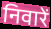
निवारें